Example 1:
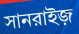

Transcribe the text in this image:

সানরাইজ়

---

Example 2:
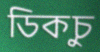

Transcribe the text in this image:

ডিকচু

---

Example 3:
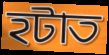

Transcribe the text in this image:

হটাত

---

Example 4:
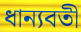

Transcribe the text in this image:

ধান্যবতী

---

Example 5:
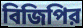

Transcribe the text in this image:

বিজিপির